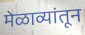
मेळाव्यांतून